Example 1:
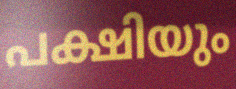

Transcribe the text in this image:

പക്ഷിയും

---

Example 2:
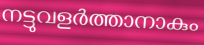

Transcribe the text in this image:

നട്ടുവളർത്താനാകും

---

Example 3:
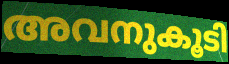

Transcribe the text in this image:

അവനുകൂടി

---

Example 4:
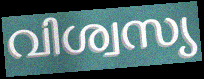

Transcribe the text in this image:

വിശ്വസ്യ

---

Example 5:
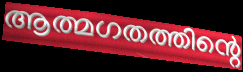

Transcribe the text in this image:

ആത്മഗതത്തിന്റെ